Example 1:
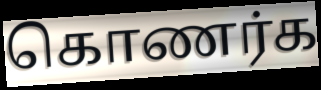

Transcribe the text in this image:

கொணர்க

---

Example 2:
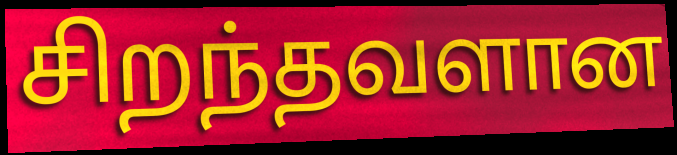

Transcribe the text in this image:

சிறந்தவளான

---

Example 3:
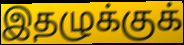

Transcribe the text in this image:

இதழுக்குக்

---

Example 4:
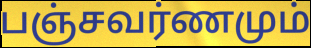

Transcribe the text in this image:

பஞ்சவர்ணமும்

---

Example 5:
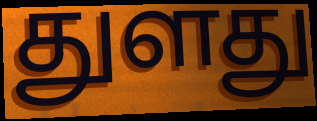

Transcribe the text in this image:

துளது